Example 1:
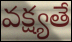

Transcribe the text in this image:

వక్ష్యతే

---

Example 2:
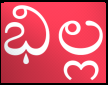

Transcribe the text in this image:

భిల్ల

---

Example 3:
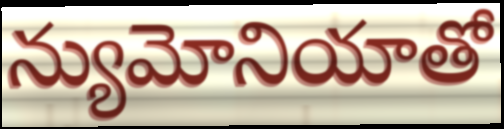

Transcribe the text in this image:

న్యుమోనియాతో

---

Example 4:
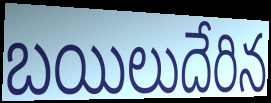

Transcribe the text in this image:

బయిలుదేరిన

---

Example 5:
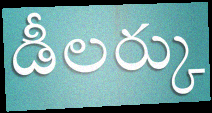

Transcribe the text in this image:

డీలర్కు